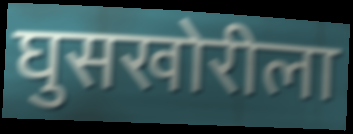
घुसखोरीला